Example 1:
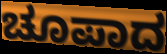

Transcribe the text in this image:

ಚೂಪಾದ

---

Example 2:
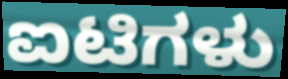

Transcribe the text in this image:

ಐಟಿಗಳು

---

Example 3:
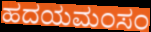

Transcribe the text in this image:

ಹದಯಮಂಸಂ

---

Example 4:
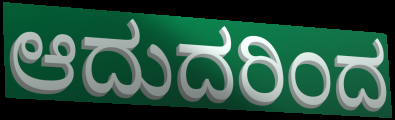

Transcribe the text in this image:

ಆದುದರಿಂದ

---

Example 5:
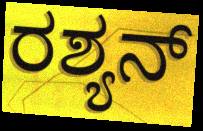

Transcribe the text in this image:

ರಶ್ಯನ್